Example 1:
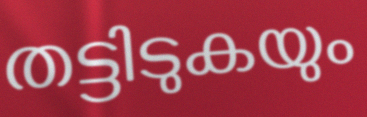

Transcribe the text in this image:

തട്ടിടുകയും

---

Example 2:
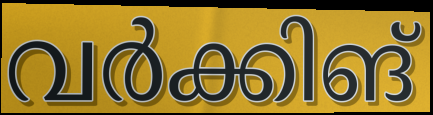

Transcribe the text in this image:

വർക്കിങ്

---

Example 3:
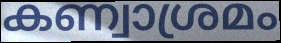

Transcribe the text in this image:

കണ്വാശ്രമം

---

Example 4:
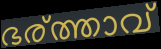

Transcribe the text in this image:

ഭര്ത്താവ്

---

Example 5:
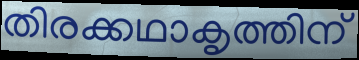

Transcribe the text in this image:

തിരക്കഥാകൃത്തിന്